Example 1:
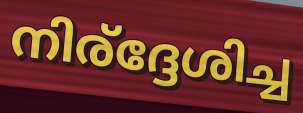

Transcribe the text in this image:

നിര്ദ്ദേശിച്ച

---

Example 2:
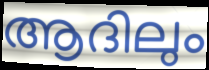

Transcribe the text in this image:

ആദിലും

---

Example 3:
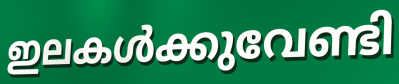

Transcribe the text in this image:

ഇലകൾക്കുവേണ്ടി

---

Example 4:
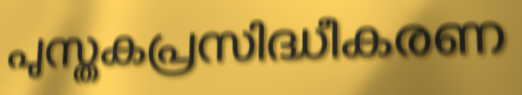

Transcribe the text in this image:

പുസ്തകപ്രസിദ്ധീകരണ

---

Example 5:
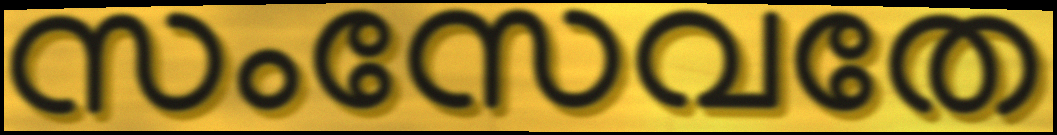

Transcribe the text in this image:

സംസേവതേ